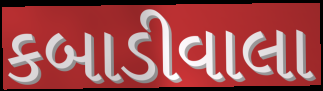
કબાડીવાલા